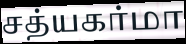
சத்யகர்மா